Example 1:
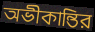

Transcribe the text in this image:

অভীকান্তির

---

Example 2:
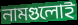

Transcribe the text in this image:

নামগুলোই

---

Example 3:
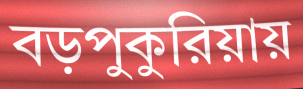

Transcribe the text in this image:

বড়পুকুরিয়ায়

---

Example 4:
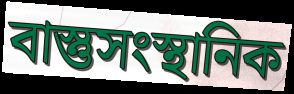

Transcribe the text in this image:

বাস্তুসংস্থানিক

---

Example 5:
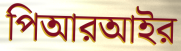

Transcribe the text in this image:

পিআরআইর